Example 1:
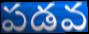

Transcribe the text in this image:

పడవ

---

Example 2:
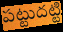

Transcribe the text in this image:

పట్టుదట్టి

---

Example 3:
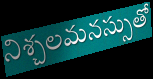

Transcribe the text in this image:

నిశ్చలమనస్సుతో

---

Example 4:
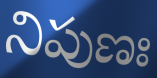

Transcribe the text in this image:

నిపుణః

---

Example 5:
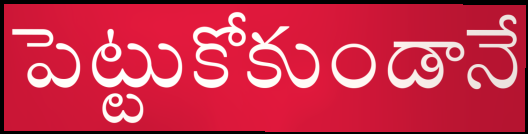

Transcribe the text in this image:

పెట్టుకోకుండానే